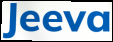
Jeeva